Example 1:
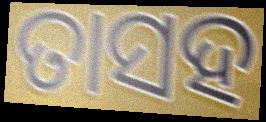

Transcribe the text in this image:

ତାସହ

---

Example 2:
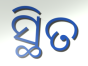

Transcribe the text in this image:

ସ୍ଥିତ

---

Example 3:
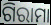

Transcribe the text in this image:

ଗିରାମା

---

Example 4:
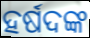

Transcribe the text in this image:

ହର୍ଷଦଙ୍କ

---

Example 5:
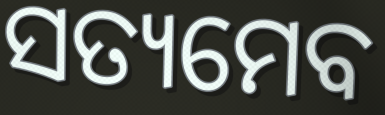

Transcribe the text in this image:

ସତ୍ୟମେବ